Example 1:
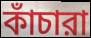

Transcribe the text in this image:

কাঁচারা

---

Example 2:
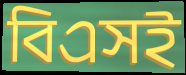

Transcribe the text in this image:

বিএসই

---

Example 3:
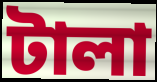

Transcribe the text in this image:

টালা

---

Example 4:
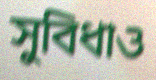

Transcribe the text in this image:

সুবিধাও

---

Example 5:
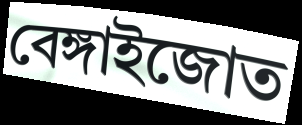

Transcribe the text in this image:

বেঙ্গাইজোত